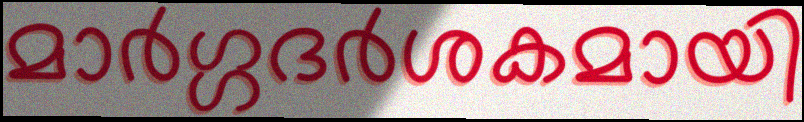
മാർഗ്ഗദർശകമായി